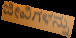
ಜೀವಿಗಳನ್ನು